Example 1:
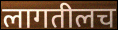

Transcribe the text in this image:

लागतीलच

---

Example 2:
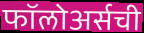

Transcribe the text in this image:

फॉलोअर्सची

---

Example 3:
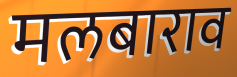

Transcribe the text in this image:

मलबाराव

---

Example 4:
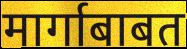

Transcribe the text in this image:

मार्गाबाबत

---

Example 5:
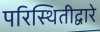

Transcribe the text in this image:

परिस्थितीद्वारे